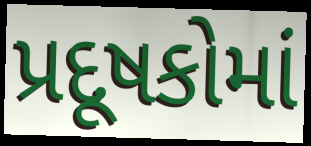
પ્રદૂષકોમાં